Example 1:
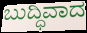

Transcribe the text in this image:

ಬುದ್ಧಿವಾದ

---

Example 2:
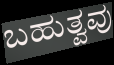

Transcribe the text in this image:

ಬಹುತ್ವವು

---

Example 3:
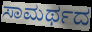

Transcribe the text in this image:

ಸಾಮರ್ಥದ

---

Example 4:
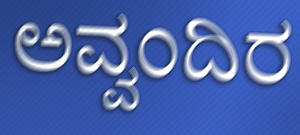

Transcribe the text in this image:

ಅವ್ವಂದಿರ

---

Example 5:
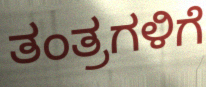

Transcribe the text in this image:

ತಂತ್ರಗಳಿಗೆ